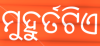
ମୁହୁର୍ତଟିଏ